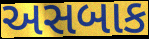
અસબાક